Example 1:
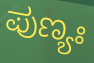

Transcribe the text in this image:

ಪುಣ್ಯಃ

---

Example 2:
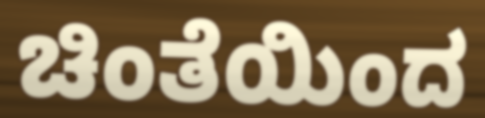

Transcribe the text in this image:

ಚಿಂತೆಯಿಂದ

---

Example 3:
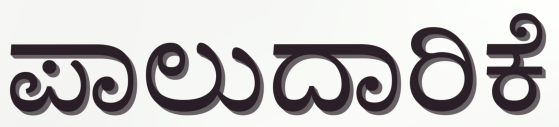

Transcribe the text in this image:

ಪಾಲುದಾರಿಕೆ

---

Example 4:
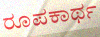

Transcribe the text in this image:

ರೂಪಕಾರ್ಥ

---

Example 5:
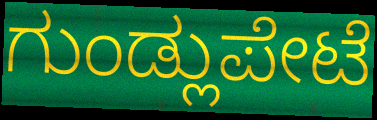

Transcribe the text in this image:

ಗುಂಡ್ಲುಪೇಟೆ